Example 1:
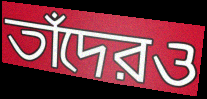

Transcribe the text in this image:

তাঁদেরও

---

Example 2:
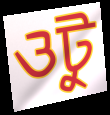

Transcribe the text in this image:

ওটু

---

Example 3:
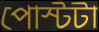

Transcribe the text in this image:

পোস্টটা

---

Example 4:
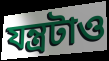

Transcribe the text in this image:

যন্ত্রটাও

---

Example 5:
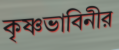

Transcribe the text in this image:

কৃষ্ণভাবিনীর